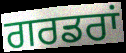
ਗਰਡਰਾਂ